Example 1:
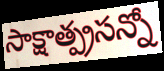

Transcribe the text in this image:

సాక్షాత్ప్రసన్నో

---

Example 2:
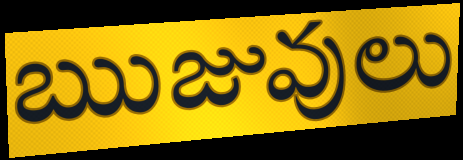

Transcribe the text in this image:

ఋజువులు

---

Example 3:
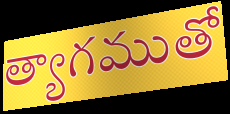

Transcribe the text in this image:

త్యాగముతో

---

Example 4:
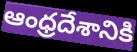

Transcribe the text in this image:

ఆంధ్రదేశానికి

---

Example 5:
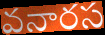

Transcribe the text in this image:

వనారస